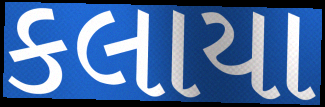
કલાયા